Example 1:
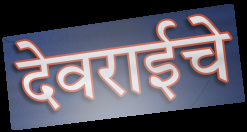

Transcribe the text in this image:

देवराईचे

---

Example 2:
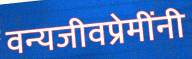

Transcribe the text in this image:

वन्यजीवप्रेमींनी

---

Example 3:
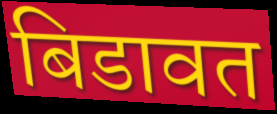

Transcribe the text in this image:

बिडावत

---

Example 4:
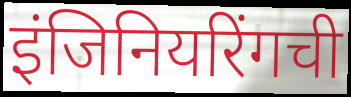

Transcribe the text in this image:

इंजिनियरिंगची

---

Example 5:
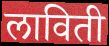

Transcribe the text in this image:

लाविती